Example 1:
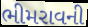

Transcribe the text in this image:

ભીમરાવની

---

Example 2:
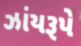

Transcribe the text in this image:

ઝાંયરૂપે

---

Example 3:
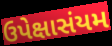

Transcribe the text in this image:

ઉપેક્ષાસંયમ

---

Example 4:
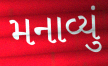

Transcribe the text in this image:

મનાવ્યું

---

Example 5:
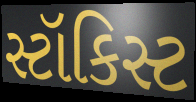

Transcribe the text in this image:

સ્ટૉકિસ્ટ